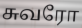
சுவரோ